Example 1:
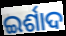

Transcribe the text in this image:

ଇର୍ଶାଦ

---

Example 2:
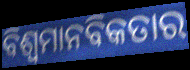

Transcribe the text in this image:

ବିଶ୍ଵମାନବିକତାର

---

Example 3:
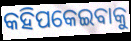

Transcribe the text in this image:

କହିପକେଇବାକୁ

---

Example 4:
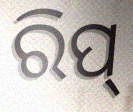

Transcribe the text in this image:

ରିପ୍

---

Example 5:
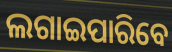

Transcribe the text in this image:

ଲଗାଇପାରିବେ